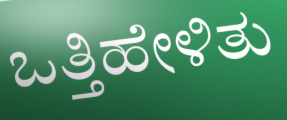
ಒತ್ತಿಹೇಳಿತು